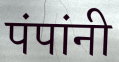
पंपांनी